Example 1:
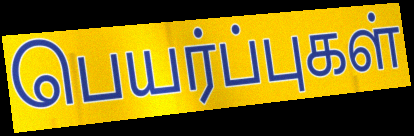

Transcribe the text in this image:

பெயர்ப்புகள்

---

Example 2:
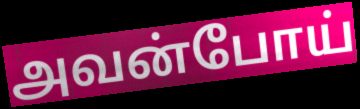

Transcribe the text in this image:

அவன்போய்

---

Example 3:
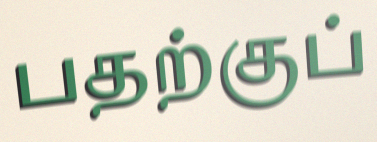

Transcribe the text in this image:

பதற்குப்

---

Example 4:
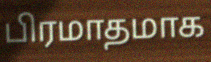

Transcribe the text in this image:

பிரமாதமாக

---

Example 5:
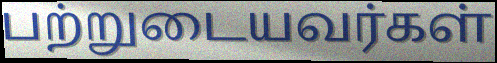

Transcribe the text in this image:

பற்றுடையவர்கள்